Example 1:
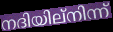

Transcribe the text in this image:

നദിയില്നിന്ന്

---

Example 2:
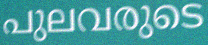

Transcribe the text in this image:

പുലവരുടെ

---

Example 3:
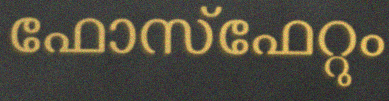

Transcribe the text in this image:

ഫോസ്ഫേറ്റും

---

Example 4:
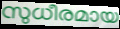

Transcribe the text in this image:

സുധീരമായ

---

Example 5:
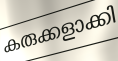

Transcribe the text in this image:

കരുക്കളാക്കി